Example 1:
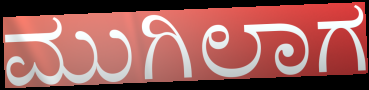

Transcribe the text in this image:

ಮುಗಿಲಾಗ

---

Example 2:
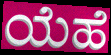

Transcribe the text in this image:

ಯೆಹೆ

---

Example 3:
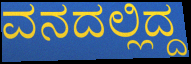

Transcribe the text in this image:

ವನದಲ್ಲಿದ್ದ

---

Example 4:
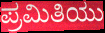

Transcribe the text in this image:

ಪ್ರಮಿತಿಯು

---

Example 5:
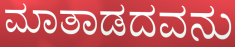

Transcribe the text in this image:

ಮಾತಾಡದವನು